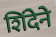
शिंदेने